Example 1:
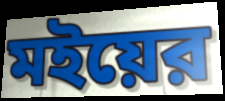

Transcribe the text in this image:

মইয়ের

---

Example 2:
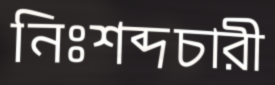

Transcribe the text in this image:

নিঃশব্দচারী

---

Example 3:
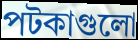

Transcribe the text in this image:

পটকাগুলো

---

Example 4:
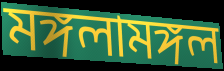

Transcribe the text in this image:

মঙ্গলামঙ্গল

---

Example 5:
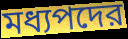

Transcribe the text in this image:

মধ্যপদের